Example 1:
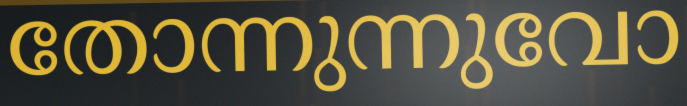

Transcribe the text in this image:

തോന്നുന്നുവോ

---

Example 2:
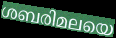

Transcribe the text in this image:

ശബരിമലയെ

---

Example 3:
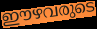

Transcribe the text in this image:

ഈഴവരുടെ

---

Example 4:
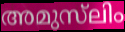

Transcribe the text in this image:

അമുസ്‌ലിം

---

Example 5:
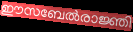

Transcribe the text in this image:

ഈസബേൽരാജ്ഞി